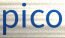
pico